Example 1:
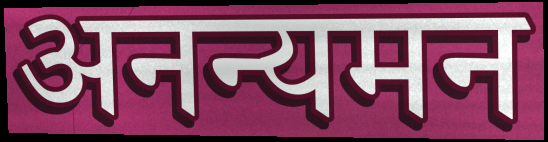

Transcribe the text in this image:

अनन्यमन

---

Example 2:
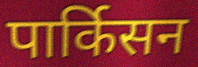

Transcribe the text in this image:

पार्किसन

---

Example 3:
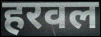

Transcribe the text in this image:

हरवल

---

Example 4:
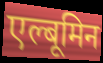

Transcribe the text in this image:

एल्बूमिन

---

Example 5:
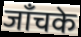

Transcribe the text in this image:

जाँचके